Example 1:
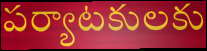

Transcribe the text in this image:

పర్యాటకులకు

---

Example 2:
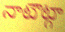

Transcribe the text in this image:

నాటౌట్గా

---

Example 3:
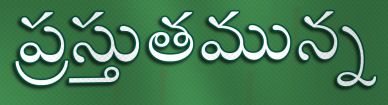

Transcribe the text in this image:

ప్రస్తుతమున్న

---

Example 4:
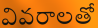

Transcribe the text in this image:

వివరాలతో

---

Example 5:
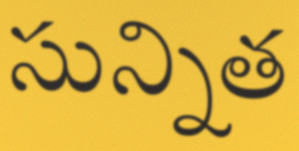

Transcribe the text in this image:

సున్నిత